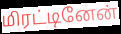
மிரட்டினேன்